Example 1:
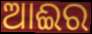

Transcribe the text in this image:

ଆଈର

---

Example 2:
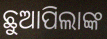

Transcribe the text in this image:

ଛୁଆପିଲାଙ୍କ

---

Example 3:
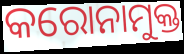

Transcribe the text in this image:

କରୋନାମୁକ୍ତ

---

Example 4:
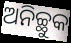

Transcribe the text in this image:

ଅନିଚ୍ଛୁକ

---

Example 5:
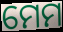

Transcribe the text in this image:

ମେମ